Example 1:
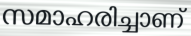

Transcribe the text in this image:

സമാഹരിച്ചാണ്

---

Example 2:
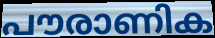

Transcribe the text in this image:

പൗരാണിക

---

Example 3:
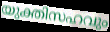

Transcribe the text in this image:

യുക്തിസഹവും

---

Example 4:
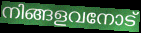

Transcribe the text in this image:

നിങ്ങളവനോട്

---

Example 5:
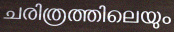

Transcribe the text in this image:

ചരിത്രത്തിലെയും